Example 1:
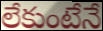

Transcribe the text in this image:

లేకుంటేనే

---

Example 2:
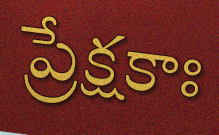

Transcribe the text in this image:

ప్రేక్షకాః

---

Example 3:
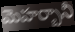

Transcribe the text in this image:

మెహర్బానీ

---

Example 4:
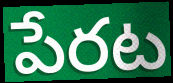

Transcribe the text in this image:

పేరట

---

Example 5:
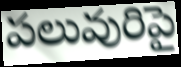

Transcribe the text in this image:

పలువురిపై